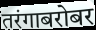
तरंगाबरोबर